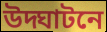
উদ্ঘাটনে